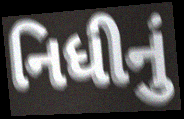
નિધીનું